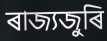
ৰাজ্যজুৰি